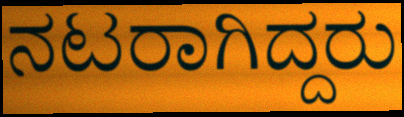
ನಟರಾಗಿದ್ದರು